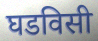
घडविसी